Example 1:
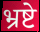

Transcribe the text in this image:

भ्रष्टे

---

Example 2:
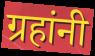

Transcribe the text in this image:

ग्रहांनी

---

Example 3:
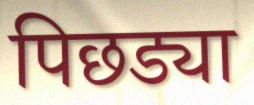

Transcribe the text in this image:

पिछड्या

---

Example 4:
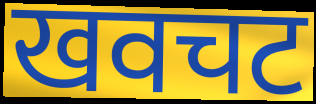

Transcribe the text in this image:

खवचट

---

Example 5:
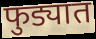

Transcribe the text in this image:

फुड्यात